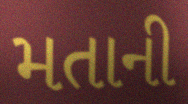
મતાની